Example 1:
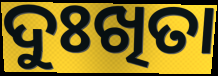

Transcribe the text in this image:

ଦୁଃଖିତା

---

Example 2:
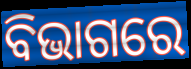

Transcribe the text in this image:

ବିଭାଗରେ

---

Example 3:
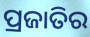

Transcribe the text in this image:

ପ୍ରଜାତିର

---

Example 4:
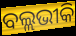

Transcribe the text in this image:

ବଲ୍ଲଭୀକି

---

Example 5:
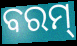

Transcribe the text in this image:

ବରମ୍